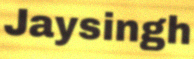
Jaysingh